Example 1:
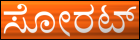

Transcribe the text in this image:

ಸೋರಟ್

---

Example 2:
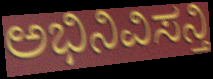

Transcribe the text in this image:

ಅಭಿನಿವಿಸನ್ತಿ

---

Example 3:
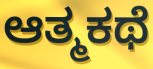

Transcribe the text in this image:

ಆತ್ಮಕಥೆ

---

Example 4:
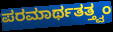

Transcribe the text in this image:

ಪರಮಾರ್ಥತತ್ತ್ವಂ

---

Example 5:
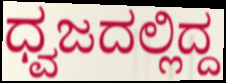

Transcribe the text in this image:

ಧ್ವಜದಲ್ಲಿದ್ದ